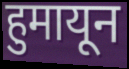
हुमायून